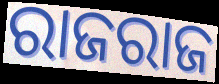
ରାଜରାଜ